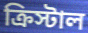
ক্রিস্টাল